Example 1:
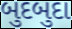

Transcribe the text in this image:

બુદબુદા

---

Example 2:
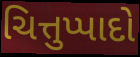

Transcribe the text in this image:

ચિત્તુપ્પાદો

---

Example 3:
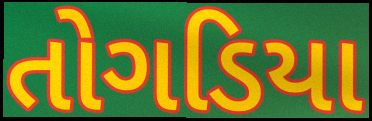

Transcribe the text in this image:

તોગડિયા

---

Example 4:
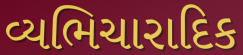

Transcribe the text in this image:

વ્યભિચારાદિક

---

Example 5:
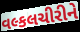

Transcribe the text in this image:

વલ્કલચીરીને